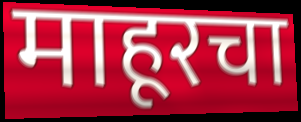
माहूरचा